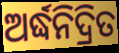
ଅର୍ଦ୍ଧନିଦ୍ରିତ